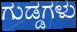
ಗುಡ್ಡಗಳು